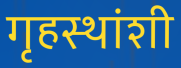
गृहस्थांशी